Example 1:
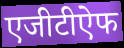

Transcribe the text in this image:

एजीटीऐफ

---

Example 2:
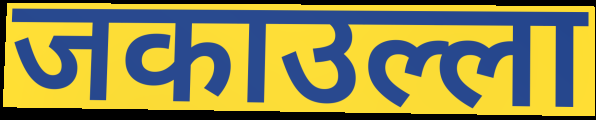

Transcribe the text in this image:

जकाउल्ला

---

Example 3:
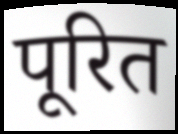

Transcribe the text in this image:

पूरित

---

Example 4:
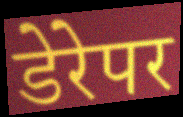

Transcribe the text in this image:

डेरेपर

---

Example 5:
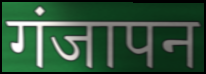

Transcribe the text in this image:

गंजापन